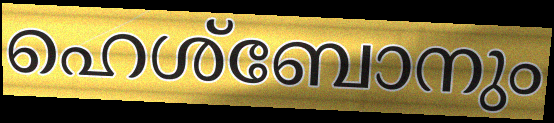
ഹെശ്ബോനും